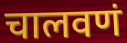
चालवणं